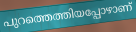
പുറത്തെത്തിയപ്പോഴാണ്